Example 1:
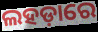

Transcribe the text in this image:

ଲହଡ଼ାରେ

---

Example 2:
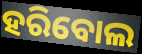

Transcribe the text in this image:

ହରିବୋଲ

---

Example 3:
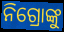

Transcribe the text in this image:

ନିଗ୍ରୋଙ୍କୁ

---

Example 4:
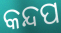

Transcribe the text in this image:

କନ୍ଦପ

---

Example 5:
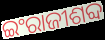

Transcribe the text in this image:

ଇଂରାଜୀଶବ୍ଦ